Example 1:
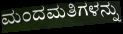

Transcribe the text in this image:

ಮಂದಮತಿಗಳನ್ನು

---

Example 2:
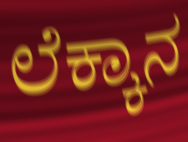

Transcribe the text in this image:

ಲೆಕ್ಕಾನ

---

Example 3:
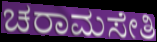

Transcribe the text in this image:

ಚರಾಮಸೇತಿ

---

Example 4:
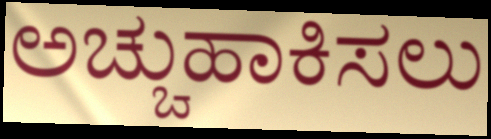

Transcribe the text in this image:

ಅಚ್ಚುಹಾಕಿಸಲು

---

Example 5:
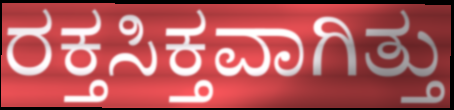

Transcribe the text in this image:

ರಕ್ತಸಿಕ್ತವಾಗಿತ್ತು